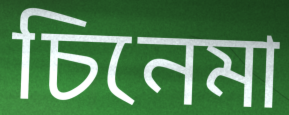
চিনেমা